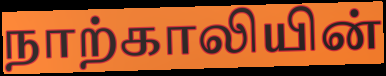
நாற்காலியின்